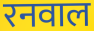
रनवाल